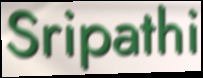
Sripathi